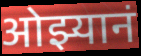
ओझ्यानं